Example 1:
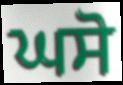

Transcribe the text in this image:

ਘਸੋ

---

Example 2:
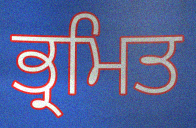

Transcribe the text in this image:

ਭ੍ਰਮਿਤ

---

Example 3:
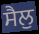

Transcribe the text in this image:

ਸੈਲੁ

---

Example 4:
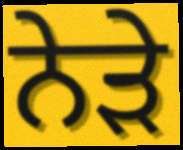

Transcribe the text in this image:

ਨੇਡ਼ੇ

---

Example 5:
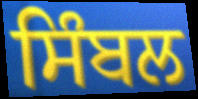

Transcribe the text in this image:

ਸਿੰਬਲ